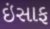
ઇંસાફ